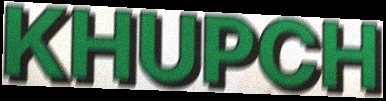
KHUPCH